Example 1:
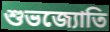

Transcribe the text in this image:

শুভজ্যোতি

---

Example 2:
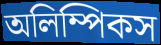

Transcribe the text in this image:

অলিম্পিকস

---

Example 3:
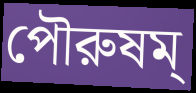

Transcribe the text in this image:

পৌরুষম্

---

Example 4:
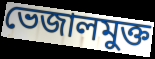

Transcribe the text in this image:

ভেজালমুক্ত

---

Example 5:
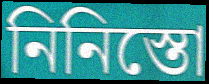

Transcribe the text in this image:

নিনিস্তো